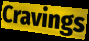
Cravings